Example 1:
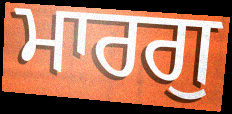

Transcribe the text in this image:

ਮਾਰਗੁ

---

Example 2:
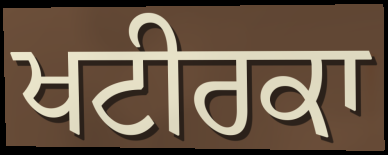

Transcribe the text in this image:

ਖਟੀਰਕਾ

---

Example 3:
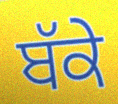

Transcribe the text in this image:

ਬੱਕੇ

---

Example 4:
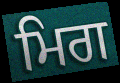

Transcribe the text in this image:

ਮਿਗ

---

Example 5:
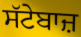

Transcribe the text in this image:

ਸੱਟੇਬਾਜ਼